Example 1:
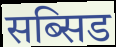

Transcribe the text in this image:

सब्सिड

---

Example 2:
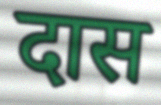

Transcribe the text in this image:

दास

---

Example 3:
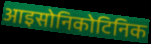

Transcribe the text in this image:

आइसोनिकोटिनिक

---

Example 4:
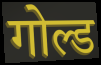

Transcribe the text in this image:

गोल्ड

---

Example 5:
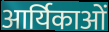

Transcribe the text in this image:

आर्यिकाओं